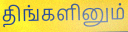
திங்களினும்